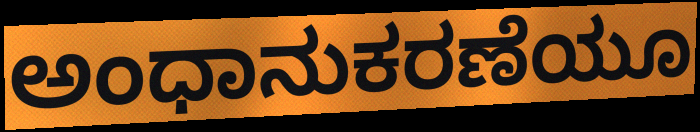
ಅಂಧಾನುಕರಣೆಯೂ